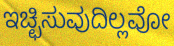
ಇಚ್ಛಿಸುವುದಿಲ್ಲವೋ